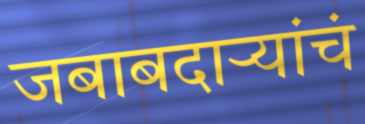
जबाबदार्‍यांचं